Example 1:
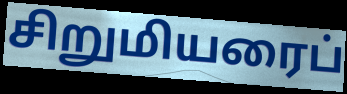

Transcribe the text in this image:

சிறுமியரைப்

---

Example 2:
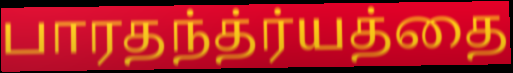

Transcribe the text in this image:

பாரதந்த்ர்யத்தை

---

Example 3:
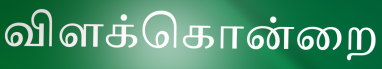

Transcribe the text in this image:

விளக்கொன்றை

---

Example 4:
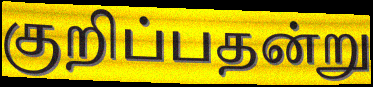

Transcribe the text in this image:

குறிப்பதன்று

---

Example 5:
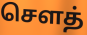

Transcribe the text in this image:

சௌத்